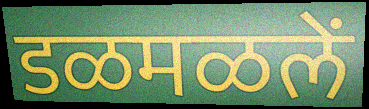
डळमळलें